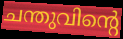
ചന്തുവിന്റെ